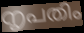
നൃപതിം